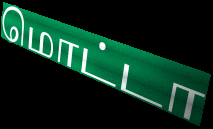
மொட்டா